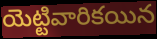
యెట్టివారికయిన